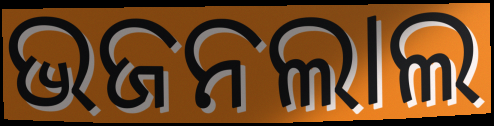
ଭଜନଲାଲ